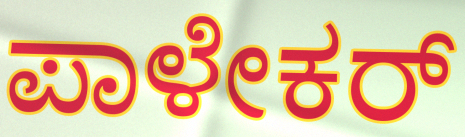
ಪಾಳೇಕರ್